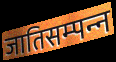
जातिसम्पन्न